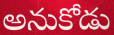
అనుకోడు